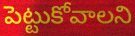
పెట్టుకోవాలని